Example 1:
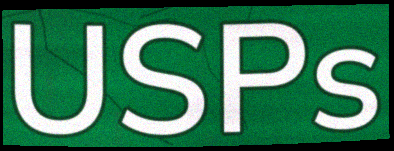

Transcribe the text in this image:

USPs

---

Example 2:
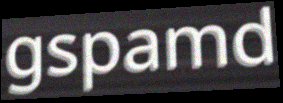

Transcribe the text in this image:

gspamd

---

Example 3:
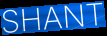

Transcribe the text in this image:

SHANT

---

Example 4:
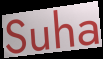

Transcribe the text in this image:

Suha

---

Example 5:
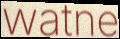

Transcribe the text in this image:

watne